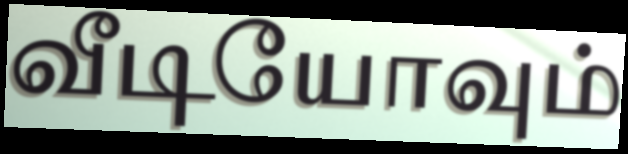
வீடியோவும்